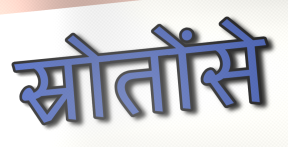
स्रोतोंसे